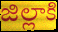
జిల్లాకి